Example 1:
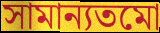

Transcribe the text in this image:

সামান্যতমো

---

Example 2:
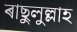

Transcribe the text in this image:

ৰাছুলুল্লাহ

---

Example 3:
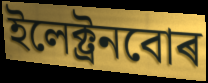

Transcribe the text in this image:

ইলেক্ট্ৰনবোৰ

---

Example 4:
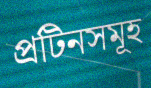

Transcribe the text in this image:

প্ৰটিনসমূহ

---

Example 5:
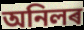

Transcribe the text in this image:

অনিলৰ